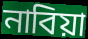
নাবিয়া